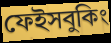
ফেইসবুকিং